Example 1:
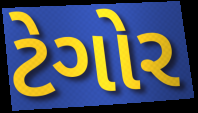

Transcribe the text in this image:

ટેગોર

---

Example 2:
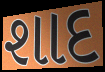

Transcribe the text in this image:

શાદ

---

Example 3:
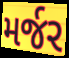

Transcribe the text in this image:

મર્જર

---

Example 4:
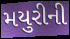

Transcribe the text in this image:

મયુરીની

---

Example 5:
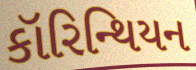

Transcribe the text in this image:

કૉરિન્થિયન